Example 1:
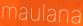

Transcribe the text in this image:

maulana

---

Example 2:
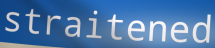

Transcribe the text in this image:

straitened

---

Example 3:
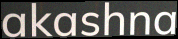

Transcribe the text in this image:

akashna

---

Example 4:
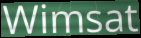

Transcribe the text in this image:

Wimsat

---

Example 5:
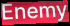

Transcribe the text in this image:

Enemy